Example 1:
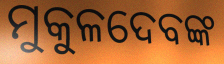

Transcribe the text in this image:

ମୁକୁଳଦେବଙ୍କ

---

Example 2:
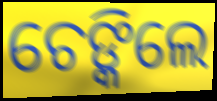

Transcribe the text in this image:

ଚେଙ୍କିଲେ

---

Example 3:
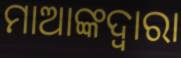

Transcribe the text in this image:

ମାଆଙ୍କଦ୍ଵାରା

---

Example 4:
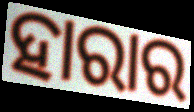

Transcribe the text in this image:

ହାରାର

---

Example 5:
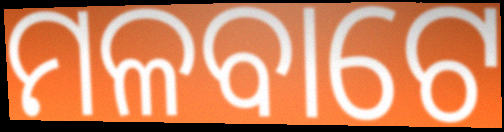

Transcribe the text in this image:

ମଳବାଟେ